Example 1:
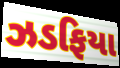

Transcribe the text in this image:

ઝડફિયા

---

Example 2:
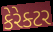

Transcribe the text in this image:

કેરેક્ટર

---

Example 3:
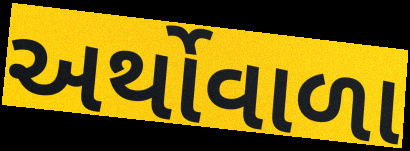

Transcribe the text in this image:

અર્થોવાળા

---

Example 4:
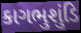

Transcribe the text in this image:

કાગભુશુંડિ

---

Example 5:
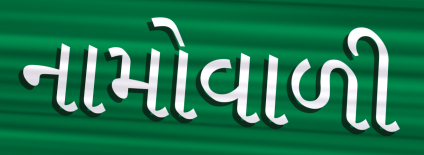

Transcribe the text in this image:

નામોવાળી